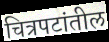
चित्रपटांतील